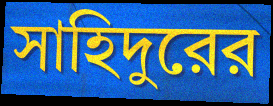
সাহিদুরের